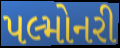
પલ્મોનરી